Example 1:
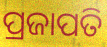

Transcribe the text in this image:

ପ୍ରଜାପତି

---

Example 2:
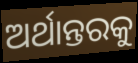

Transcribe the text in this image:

ଅର୍ଥାନ୍ତରକୁ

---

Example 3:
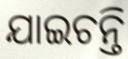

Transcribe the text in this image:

ଯାଇଚନ୍ତି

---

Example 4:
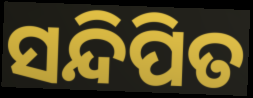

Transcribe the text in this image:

ସନ୍ଦିପିତ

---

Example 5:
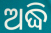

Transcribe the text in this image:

ଅଦ୍ଧି